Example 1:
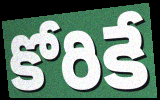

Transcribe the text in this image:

కోరికే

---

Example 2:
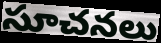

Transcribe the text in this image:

సూచనలు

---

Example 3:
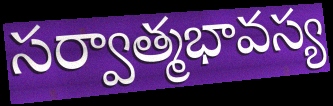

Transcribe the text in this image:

సర్వాత్మభావస్య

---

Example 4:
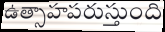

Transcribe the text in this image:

ఉత్సాహపరుస్తుంది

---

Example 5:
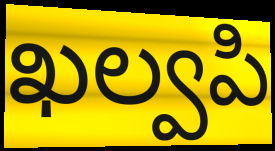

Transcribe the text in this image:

ఖల్వపి